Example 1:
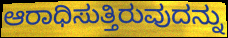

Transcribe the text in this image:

ಆರಾಧಿಸುತ್ತಿರುವುದನ್ನು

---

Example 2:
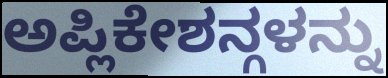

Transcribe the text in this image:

ಅಪ್ಲಿಕೇಶನ್ಗಳನ್ನು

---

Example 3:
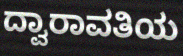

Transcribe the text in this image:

ದ್ವಾರಾವತಿಯ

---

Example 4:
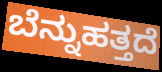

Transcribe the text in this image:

ಬೆನ್ನುಹತ್ತದೆ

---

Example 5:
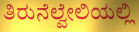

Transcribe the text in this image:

ತಿರುನೆಲ್ವೇಲಿಯಲ್ಲಿ